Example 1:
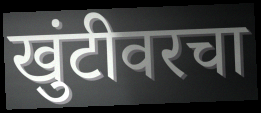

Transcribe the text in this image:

खुंटीवरचा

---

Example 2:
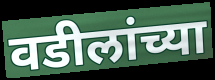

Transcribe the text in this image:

वडीलांच्या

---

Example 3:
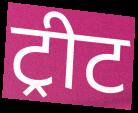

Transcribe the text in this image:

ट्रीट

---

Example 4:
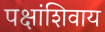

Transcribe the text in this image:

पक्षांशिवाय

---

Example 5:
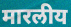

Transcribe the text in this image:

मारलीय